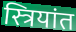
स्त्रियांत